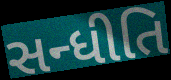
સન્ધીતિ